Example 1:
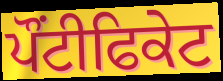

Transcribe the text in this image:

ਪੌਂਟੀਫਿਕੇਟ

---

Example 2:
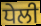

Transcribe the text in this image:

ਧੇਲੀ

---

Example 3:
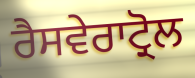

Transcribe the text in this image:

ਰੈਸਵੇਰਾਟ੍ਰੋਲ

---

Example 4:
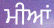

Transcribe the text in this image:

ਮੀਆਂ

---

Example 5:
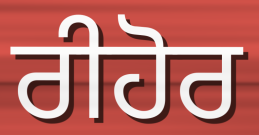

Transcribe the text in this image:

ਰੀਹੋਰ